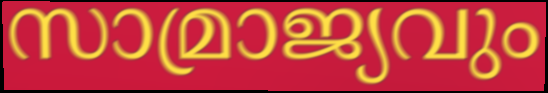
സാമ്രാജ്യവും